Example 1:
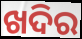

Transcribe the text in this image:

ଖଦିର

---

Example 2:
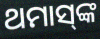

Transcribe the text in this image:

ଥମାସ୍‌ଙ୍କ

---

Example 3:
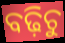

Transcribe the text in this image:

ବଢ଼ିଚୁ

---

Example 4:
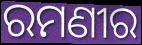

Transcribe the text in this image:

ରମଣୀର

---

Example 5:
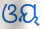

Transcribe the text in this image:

ଓୟ